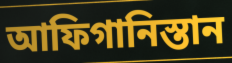
আফিগানিস্তান